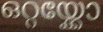
ഒറ്റയ്ക്കോ